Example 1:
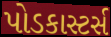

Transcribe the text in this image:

પોડકાસ્ટર્સ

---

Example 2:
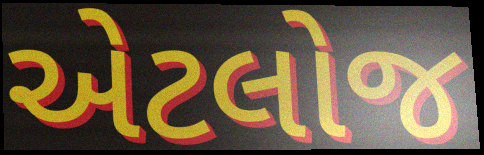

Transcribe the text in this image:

એટલોજ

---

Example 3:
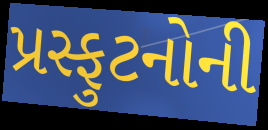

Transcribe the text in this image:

પ્રસ્ફુટનોની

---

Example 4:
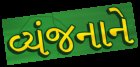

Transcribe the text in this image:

વ્યંજનાને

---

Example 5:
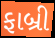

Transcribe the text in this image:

ફાબ્રી